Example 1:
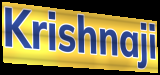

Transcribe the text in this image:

Krishnaji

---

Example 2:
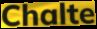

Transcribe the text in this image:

Chalte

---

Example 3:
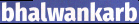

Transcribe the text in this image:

bhalwankarb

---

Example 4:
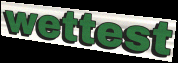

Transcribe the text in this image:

wettest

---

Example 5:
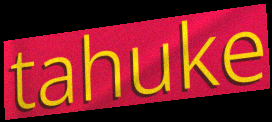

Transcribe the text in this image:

tahuke